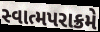
સ્વાત્મપરાક્રમે